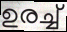
ഉരച്ച്